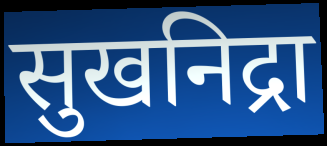
सुखनिद्रा